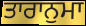
ਤਾਰਾਨੁਮਾ